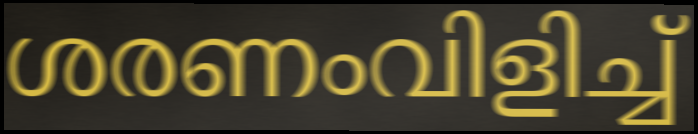
ശരണംവിളിച്ച്